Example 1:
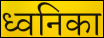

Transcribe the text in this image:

ध्वनिका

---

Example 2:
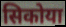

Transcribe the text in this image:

सिकोया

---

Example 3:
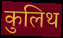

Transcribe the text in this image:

कुलिथ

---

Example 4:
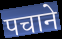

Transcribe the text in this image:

पचाने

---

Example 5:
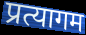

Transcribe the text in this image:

प्रत्यागम